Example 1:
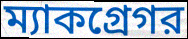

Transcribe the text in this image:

ম্যাকগ্রেগর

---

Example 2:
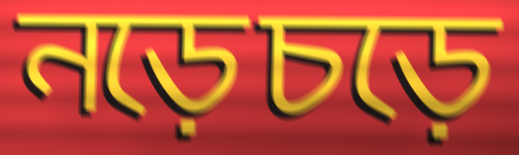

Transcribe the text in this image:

নড়েচড়ে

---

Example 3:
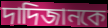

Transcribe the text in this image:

দাদিজানকে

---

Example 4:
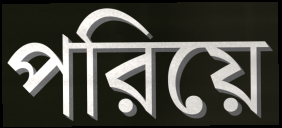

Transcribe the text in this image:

পরিয়ে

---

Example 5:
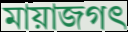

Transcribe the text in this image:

মায়াজগৎ